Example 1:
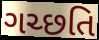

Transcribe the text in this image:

ગચ્છતિ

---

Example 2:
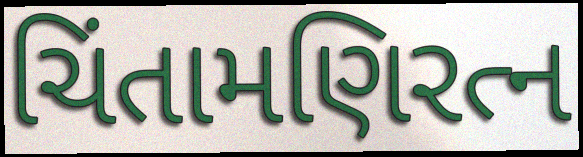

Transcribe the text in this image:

ચિંતામણિરત્ન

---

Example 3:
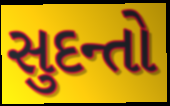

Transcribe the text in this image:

સુદન્તો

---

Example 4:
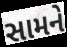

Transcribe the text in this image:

સામને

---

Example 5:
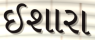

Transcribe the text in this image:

ઈશારા